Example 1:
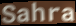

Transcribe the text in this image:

Sahra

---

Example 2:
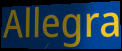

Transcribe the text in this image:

Allegra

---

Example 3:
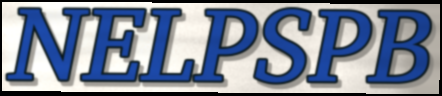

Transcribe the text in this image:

NELPSPB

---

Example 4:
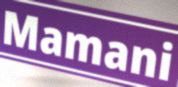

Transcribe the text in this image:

Mamani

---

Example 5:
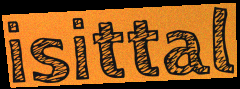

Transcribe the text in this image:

isittal